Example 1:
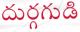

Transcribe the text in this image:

దుర్గగుడి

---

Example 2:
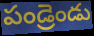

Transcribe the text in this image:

పండ్రెండు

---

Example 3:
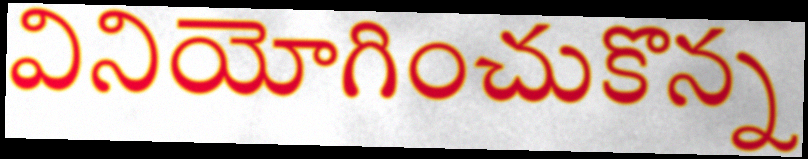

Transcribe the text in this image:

వినియోగించుకొన్న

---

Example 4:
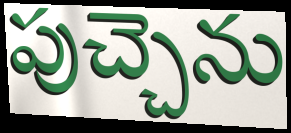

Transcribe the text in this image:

పుచ్చెను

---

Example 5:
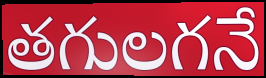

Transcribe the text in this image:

తగులగనే